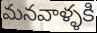
మనవాళ్ళకి